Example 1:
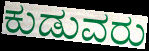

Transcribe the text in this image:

ಕುಡುವರು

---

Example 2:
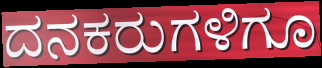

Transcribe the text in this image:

ದನಕರುಗಳಿಗೂ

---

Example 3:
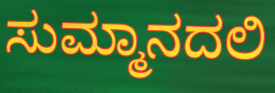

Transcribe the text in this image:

ಸುಮ್ಮಾನದಲಿ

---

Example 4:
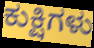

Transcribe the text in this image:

ಕುಕ್ಷಿಗಳು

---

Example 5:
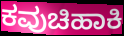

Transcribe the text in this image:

ಕವುಚಿಹಾಕಿ